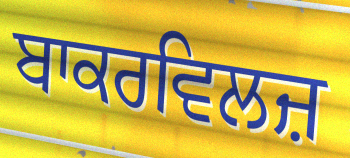
ਬਾਕਰਵਿਲਜ਼